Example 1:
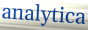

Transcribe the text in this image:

analytica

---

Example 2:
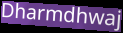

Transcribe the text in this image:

Dharmdhwaj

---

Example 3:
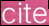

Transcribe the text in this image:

cite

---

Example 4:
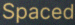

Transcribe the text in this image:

Spaced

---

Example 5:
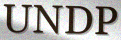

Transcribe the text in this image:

UNDP